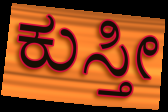
ಕುಸ್ತೀ